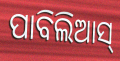
ପାବିଲିଆସ୍